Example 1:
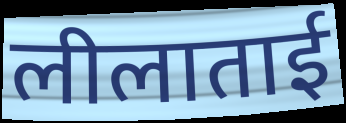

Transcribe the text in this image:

लीलाताई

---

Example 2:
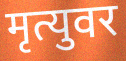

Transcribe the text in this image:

मृत्युवर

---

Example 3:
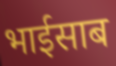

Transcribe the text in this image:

भाईसाब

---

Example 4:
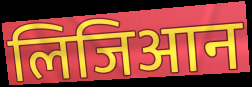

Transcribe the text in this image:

लिजिआन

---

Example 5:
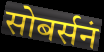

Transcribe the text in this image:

सोबर्सनं